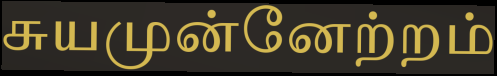
சுயமுன்னேற்றம்